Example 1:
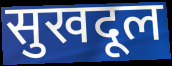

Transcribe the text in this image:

सुखदूल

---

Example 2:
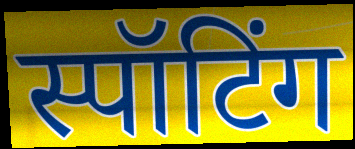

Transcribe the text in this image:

स्पॉटिंग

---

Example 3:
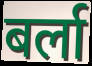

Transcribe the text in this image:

बर्ला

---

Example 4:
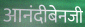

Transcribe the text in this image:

आनंदीबेनजी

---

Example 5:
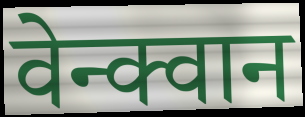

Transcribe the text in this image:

वेन्क्वान